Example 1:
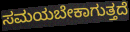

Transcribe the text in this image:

ಸಮಯಬೇಕಾಗುತ್ತದೆ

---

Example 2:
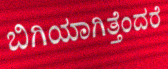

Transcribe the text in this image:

ಬಿಗಿಯಾಗಿತ್ತೆಂದರೆ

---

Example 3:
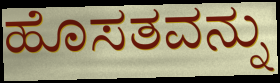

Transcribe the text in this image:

ಹೊಸತವನ್ನು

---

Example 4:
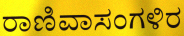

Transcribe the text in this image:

ರಾಣಿವಾಸಂಗಳಿರ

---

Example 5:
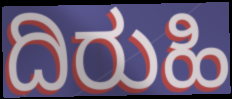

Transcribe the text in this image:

ದಿರುಹಿ